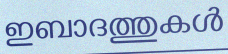
ഇബാദത്തുകൾ